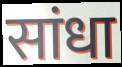
सांधा